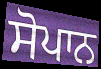
ਸੋਪਾਨ